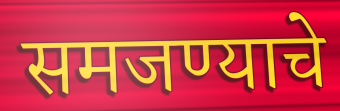
समजण्याचे